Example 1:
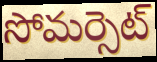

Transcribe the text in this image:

సోమర్సెట్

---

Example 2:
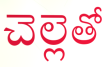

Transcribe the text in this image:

చెల్లెతో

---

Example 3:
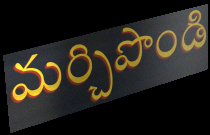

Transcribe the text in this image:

మర్చిపొండి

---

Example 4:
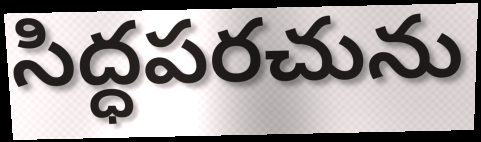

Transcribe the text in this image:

సిద్ధపరచును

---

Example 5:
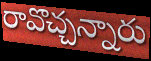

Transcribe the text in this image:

రావొచ్చన్నారు